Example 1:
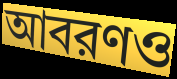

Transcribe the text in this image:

আবরণও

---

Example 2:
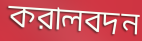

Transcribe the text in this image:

করালবদন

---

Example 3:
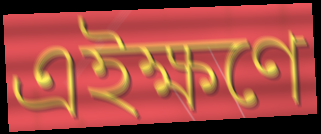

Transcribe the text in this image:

এইক্ষণে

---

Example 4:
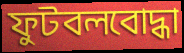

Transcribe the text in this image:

ফুটবলবোদ্ধা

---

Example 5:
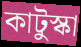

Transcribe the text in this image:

কাটুস্কা